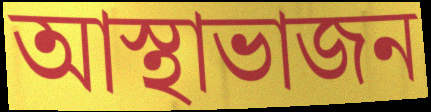
আস্থাভাজন